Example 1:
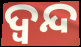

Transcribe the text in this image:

ଦ୍ବନ୍ଦ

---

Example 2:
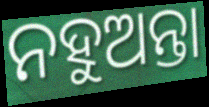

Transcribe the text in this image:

ନହୁଅନ୍ତା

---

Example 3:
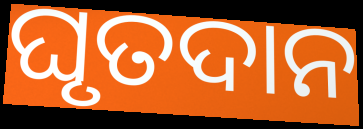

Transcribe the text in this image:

ଘୃତଦାନ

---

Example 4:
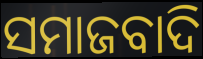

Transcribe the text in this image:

ସମାଜବାଦି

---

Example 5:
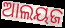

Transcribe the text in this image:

ଆଲୟଜ